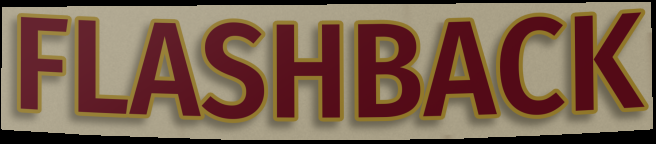
FLASHBACK